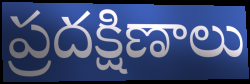
ప్రదక్షిణాలు